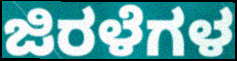
ಜಿರಳೆಗಳ